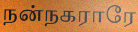
நன்நகராரே